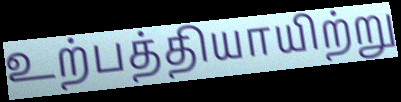
உற்பத்தியாயிற்று